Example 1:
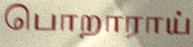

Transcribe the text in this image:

பொறாராய்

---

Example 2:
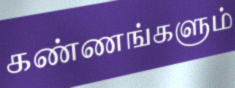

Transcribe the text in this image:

கண்ணங்களும்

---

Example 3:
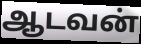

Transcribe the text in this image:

ஆடவன்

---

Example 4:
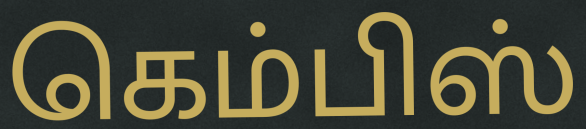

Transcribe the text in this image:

கெம்பிஸ்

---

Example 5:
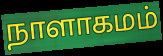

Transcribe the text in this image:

நாளாகமம்